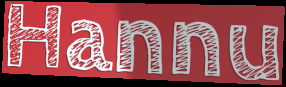
Hannu